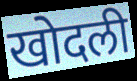
खोदली